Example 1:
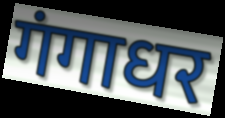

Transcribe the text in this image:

गंगाधर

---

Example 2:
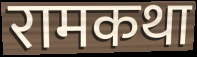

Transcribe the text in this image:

रामकथा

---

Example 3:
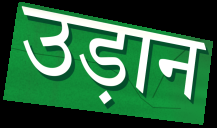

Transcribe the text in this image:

उड़ान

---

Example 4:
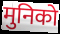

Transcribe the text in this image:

मुनिको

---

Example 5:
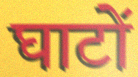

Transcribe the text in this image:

घाटों